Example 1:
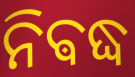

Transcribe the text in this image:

ନିଵଦ୍ଧ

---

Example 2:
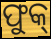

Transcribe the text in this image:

ଫୁକ୍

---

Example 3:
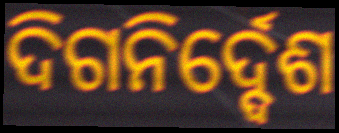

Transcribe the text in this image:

ଦିଗନିର୍ଦ୍ଦେଶ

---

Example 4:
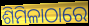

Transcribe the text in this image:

ଶିମିଳାଠାରେ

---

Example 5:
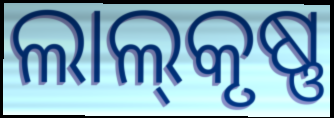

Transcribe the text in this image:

ଲାଲ୍‌କୃଷ୍ଣ